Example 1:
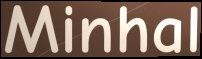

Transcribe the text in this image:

Minhal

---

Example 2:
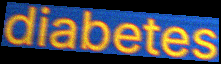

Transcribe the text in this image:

diabetes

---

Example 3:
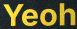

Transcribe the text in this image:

Yeoh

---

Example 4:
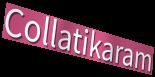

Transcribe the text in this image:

Collatikaram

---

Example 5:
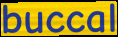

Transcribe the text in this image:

buccal